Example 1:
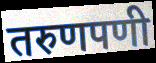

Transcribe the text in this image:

तरुणपणी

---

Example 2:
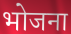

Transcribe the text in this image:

भोजना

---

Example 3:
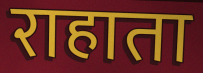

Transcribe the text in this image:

राहाता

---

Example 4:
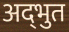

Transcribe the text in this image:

अद्‌भुत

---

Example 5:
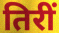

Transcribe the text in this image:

तिरीं